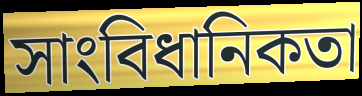
সাংবিধানিকতা